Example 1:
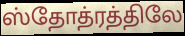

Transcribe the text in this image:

ஸ்தோத்ரத்திலே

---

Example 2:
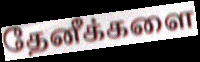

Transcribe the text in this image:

தேனீக்களை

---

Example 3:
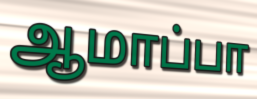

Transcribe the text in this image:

ஆமாப்பா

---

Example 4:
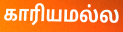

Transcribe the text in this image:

காரியமல்ல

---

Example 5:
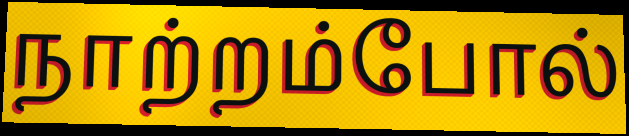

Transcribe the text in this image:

நாற்றம்போல்